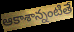
ఆకాశాన్నంటితే